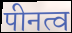
पीनत्व